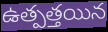
ఉత్పత్తయిన